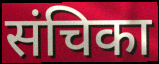
संचिका